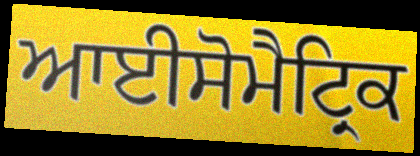
ਆਈਸੋਮੈਟ੍ਰਿਕ